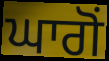
ਘਾਗੋਂ